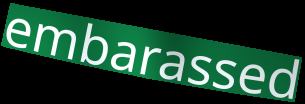
embarassed